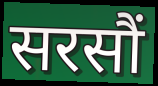
सरसौं